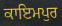
ਕਾਇਮਪੁਰ